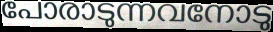
പോരാടുന്നവനോടു